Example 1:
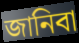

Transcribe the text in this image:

জানিবা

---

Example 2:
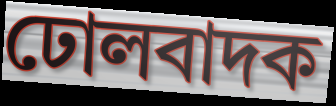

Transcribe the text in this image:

ঢোলবাদক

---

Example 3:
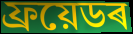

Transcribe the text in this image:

ফ্ৰয়েডৰ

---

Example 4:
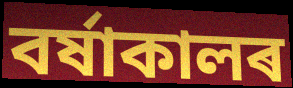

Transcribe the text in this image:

বৰ্ষাকালৰ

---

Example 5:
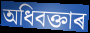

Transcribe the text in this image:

অধিবক্তাৰ